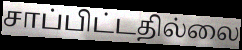
சாப்பிட்டதில்லை